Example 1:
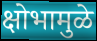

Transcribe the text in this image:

क्षोभामुळे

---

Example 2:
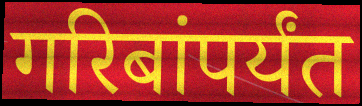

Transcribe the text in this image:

गरिबांपर्यंत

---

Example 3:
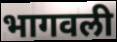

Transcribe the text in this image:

भागवली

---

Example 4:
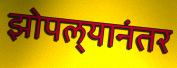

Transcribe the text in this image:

झोपल्यानंतर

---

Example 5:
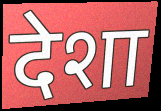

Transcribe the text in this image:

देशा